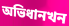
অভিধানখন